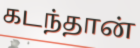
கடந்தான்